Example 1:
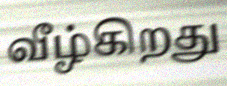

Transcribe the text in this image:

வீழ்கிறது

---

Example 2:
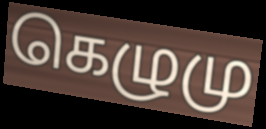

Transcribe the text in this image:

கெழுமு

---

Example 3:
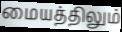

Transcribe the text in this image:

மையத்திலும்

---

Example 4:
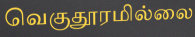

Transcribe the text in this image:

வெகுதூரமில்லை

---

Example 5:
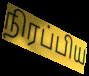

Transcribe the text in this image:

நிரப்பிய